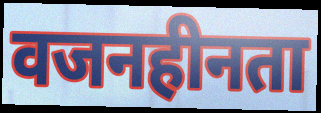
वजनहीनता